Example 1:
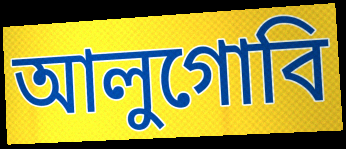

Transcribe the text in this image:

আলুগোবি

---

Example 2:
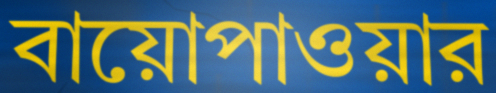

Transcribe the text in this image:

বায়োপাওয়ার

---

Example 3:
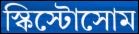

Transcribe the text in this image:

স্কিস্টোসোম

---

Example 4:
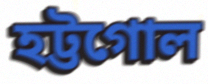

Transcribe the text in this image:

হট্টগোল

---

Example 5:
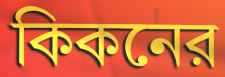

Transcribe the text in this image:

কিকনের